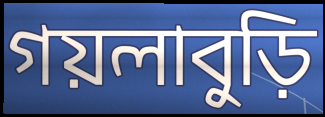
গয়লাবুড়ি